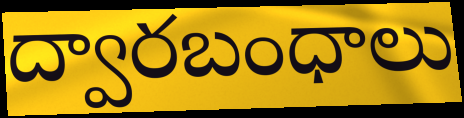
ద్వారబంధాలు